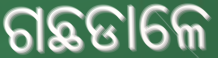
ଗଛଡାଳେ